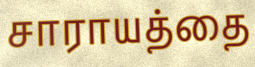
சாராயத்தை